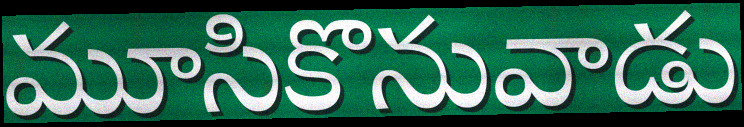
మూసికొనువాడు